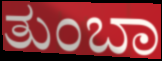
ತುಂಬಾ